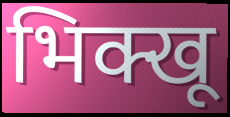
भिक्खू